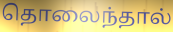
தொலைந்தால்